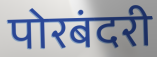
पोरबंदरी